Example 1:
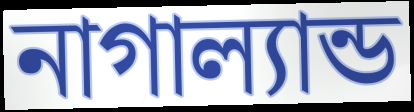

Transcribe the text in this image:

নাগাল্যান্ড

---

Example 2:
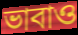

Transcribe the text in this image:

ভাবাও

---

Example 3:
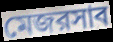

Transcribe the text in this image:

মেজরসাব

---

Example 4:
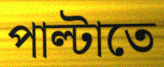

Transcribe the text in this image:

পাল্টাতে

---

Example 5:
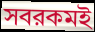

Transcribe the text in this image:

সবরকমই